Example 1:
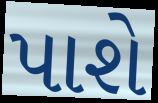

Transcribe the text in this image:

પાશે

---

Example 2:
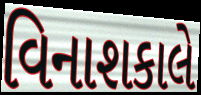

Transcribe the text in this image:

વિનાશકાલે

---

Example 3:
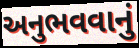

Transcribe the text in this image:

અનુભવવાનું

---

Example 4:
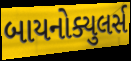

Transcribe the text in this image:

બાયનોક્યુલર્સ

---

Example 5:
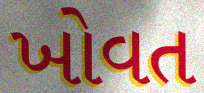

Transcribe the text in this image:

ખોવત